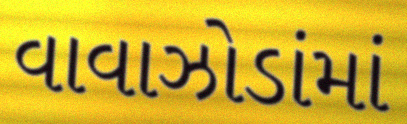
વાવાઝોડાંમાં